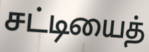
சட்டியைத்